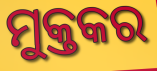
ମୁକ୍ତକର